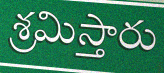
శ్రమిస్తారు